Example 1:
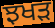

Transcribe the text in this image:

ਝਖੜ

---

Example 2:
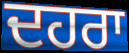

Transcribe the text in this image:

ਦਹਰਾ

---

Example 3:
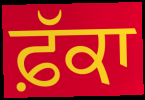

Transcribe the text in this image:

ਫ਼ੱਕਾ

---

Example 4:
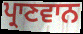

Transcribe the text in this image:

ਪ੍ਰਾਣਵਾਨ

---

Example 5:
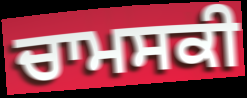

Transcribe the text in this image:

ਚਾਮਸਕੀ